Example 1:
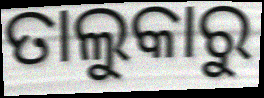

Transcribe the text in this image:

ତାଲୁକାରୁ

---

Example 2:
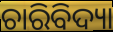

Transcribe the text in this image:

ଚାରିବିଦ୍ୟା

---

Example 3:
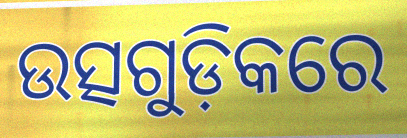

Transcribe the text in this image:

ଉତ୍ସଗୁଡ଼ିକରେ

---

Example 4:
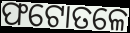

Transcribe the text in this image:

ଫଟୋତଳେ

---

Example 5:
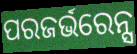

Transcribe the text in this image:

ପରଜର୍ଭରେନ୍ସ